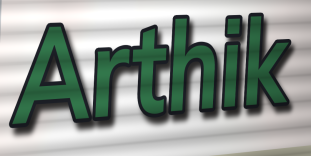
Arthik